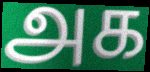
அக